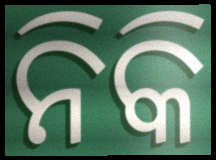
ନିକି